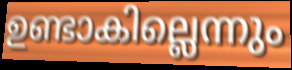
ഉണ്ടാകില്ലെന്നും